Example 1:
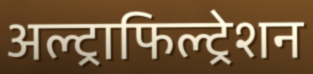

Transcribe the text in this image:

अल्ट्राफिल्ट्रेशन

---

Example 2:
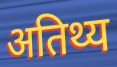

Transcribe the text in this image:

अतिथ्य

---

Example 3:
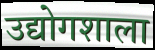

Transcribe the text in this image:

उद्योगशाला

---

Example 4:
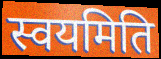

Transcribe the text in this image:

स्वयमिति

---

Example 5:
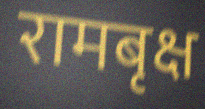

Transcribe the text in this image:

रामबृक्ष